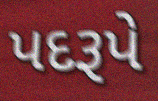
પદરૂપે